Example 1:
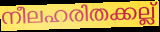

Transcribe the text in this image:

നീലഹരിതക്കല്ല്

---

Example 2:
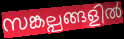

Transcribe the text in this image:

സങ്കല്പങ്ങളിൽ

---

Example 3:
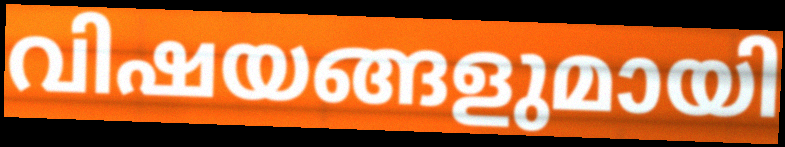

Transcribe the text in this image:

വിഷയങ്ങളുമായി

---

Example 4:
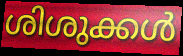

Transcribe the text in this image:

ശിശുക്കൾ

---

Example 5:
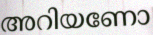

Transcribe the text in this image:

അറിയണോ